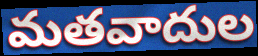
మతవాదుల